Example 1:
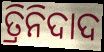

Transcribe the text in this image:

ତ୍ରିନିଦାଦ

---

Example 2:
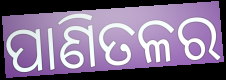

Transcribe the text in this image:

ପାଣିତଳର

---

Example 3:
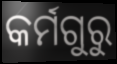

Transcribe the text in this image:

କର୍ମଗୁରୁ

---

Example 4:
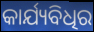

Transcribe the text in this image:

କାର୍ଯ୍ୟବିଧିର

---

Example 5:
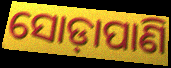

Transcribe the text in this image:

ସୋଡ଼ାପାଣି